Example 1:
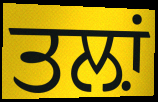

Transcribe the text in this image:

ਤਲ਼ਾਂ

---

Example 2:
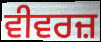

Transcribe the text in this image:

ਵੀਵਰਜ਼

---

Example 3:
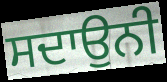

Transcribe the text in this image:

ਸਦਾਉਨੀ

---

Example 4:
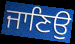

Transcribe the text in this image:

ਜਾਣਿਉ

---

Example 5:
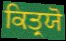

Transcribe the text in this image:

ਕਿਤ੍ਰਯੋ